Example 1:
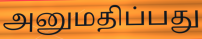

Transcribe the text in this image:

அனுமதிப்பது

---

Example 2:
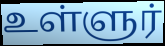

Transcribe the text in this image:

உள்ளுர்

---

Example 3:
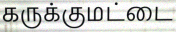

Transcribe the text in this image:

கருக்குமட்டை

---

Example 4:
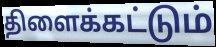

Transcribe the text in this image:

திளைக்கட்டும்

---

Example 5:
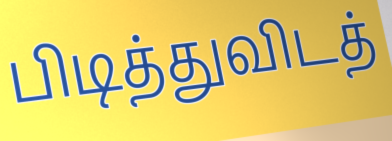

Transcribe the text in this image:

பிடித்துவிடத்